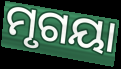
ମୃଗୟା